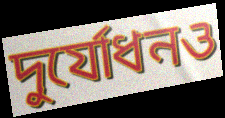
দুর্যোধনও